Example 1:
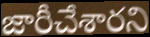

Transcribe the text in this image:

జారీచేశారని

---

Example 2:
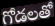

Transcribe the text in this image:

గోడలతో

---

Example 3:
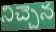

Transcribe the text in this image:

నిచ్చెన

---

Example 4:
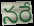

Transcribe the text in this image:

నరే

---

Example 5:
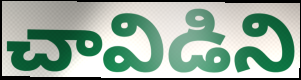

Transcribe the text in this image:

చావిడిని